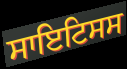
ਸਾਇਟਿਸਸ